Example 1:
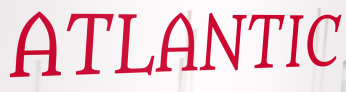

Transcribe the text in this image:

ATLANTIC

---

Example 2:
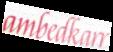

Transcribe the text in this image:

ambedkarr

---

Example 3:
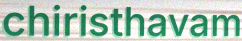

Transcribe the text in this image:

chiristhavam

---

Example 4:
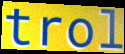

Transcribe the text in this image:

trol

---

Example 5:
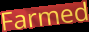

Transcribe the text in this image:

Farmed